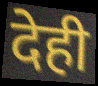
देही